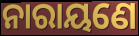
ନାରାୟଣେ